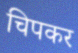
चिपकर